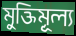
মুক্তিমূল্য